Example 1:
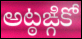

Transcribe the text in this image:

అట్ఠఙ్గికో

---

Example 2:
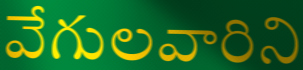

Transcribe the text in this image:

వేగులవారిని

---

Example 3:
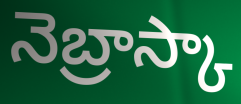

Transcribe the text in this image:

నెబ్రాస్కా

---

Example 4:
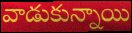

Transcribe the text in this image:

వాడుకున్నాయి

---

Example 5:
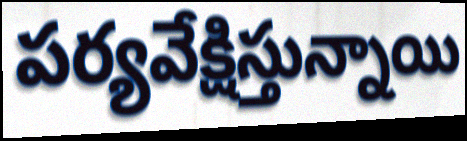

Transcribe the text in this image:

పర్యవేక్షిస్తున్నాయి